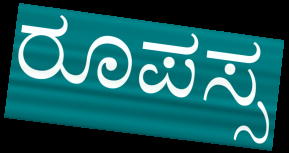
ರೂಪಸ್ಸ